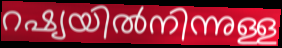
റഷ്യയിൽനിന്നുള്ള